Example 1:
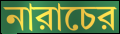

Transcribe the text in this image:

নারাচের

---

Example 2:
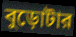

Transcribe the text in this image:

বুড়োটার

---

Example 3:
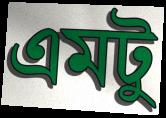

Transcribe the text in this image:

এমটু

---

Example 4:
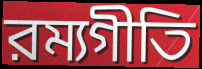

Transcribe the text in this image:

রম্যগীতি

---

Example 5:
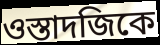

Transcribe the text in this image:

ওস্তাদজিকে